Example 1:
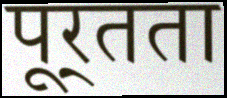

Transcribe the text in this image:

पूर्तता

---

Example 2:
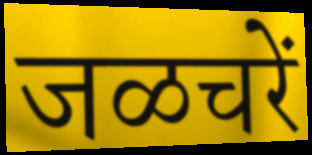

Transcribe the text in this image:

जळचरें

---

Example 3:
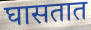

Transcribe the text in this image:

घासतात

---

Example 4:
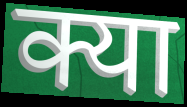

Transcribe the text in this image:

क्या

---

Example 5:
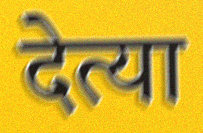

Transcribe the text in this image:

देत्या